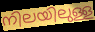
നിലയിലുള്ള